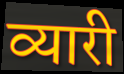
व्यारी